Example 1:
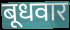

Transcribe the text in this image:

बूधवार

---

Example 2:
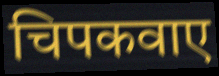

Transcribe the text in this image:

चिपकवाए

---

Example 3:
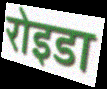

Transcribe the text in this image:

रोइडा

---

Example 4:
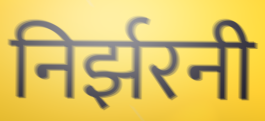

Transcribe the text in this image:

निर्झरनी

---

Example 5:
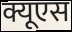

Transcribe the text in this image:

क्यूएस